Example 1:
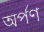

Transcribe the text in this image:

অর্পণ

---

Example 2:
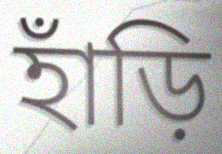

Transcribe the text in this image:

হাঁড়ি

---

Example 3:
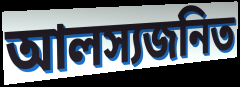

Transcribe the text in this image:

আলস্যজনিত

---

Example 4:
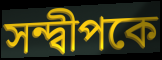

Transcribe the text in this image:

সন্দ্বীপকে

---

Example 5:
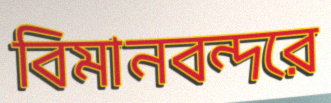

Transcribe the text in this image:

বিমানবন্দরে